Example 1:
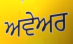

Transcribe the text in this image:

ਅਵੇਅਰ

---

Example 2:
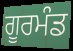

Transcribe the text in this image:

ਗੂਰਮੰਡ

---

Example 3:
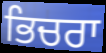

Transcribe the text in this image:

ਭਿਚਰਾ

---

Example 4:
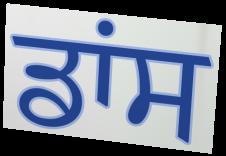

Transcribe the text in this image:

ਡਾਂਸ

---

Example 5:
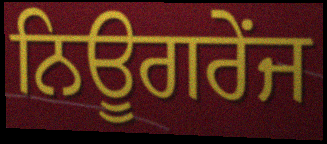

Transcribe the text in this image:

ਨਿਊਗਰੇਂਜ